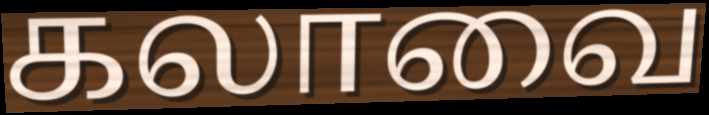
கலாவை